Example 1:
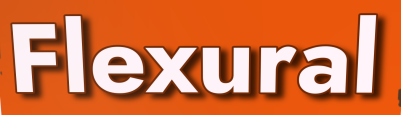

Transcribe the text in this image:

Flexural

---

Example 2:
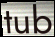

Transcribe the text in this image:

tub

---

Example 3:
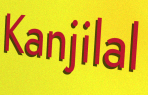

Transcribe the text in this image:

Kanjilal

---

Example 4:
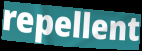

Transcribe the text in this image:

repellent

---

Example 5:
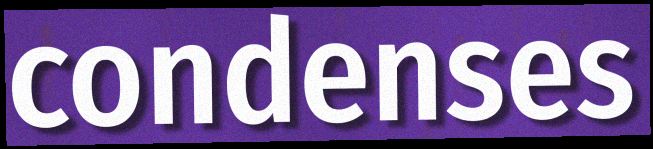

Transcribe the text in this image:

condenses